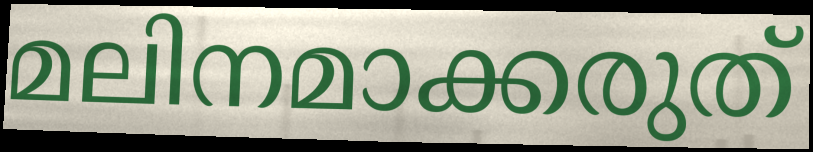
മലിനമാക്കരുത്